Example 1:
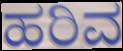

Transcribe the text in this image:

ಹರಿವ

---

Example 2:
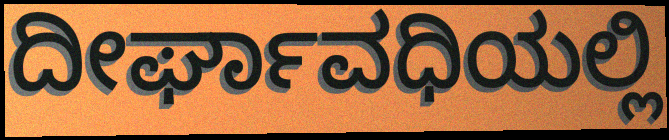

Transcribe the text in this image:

ದೀರ್ಘಾವಧಿಯಲ್ಲಿ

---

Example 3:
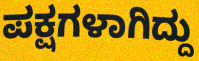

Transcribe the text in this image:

ಪಕ್ಷಗಳಾಗಿದ್ದು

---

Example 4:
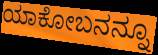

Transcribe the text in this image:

ಯಾಕೋಬನನ್ನೂ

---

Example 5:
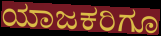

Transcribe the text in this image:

ಯಾಜಕರಿಗೂ